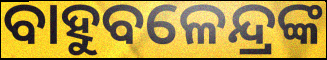
ବାହୁବଳେନ୍ଦ୍ରଙ୍କ